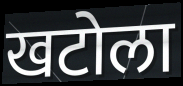
खटोला